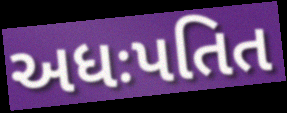
અધઃપતિત